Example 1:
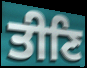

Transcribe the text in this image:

ਤੀਣਿ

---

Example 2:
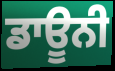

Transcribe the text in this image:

ਡਾਊਨੀ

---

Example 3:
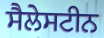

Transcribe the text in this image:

ਸੈਲੇਸਟੀਨ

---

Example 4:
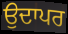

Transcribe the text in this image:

ਉਦਾਪਰ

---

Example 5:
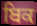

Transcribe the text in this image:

ਬਿਕ